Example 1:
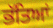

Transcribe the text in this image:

ਭੱਤਿਆਂ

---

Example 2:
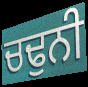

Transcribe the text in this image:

ਚਢੁਨੀ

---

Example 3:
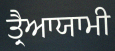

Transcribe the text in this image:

ਤ੍ਰੈਆਯਾਮੀ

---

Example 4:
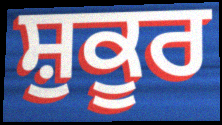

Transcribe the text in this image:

ਸ਼ੁਕੂਰ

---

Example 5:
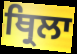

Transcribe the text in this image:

ਥ੍ਰਿਲਾ